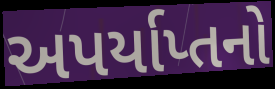
અપર્યાપ્તનો